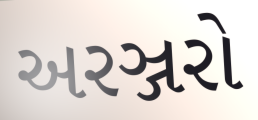
અરઞ્જરો